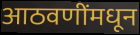
आठवणींमधून